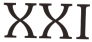
XXI